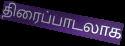
திரைப்பாடலாக